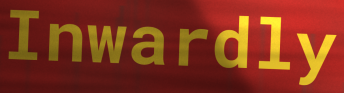
Inwardly